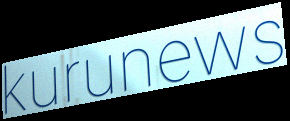
kurunews